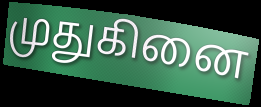
முதுகினை